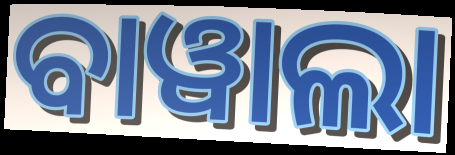
ବାୱାଲା